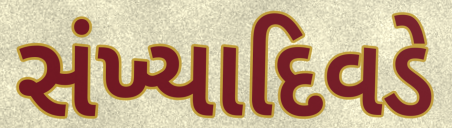
સંખ્યાદિવડે